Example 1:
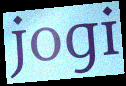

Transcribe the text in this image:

jogi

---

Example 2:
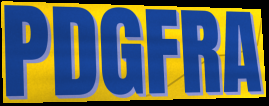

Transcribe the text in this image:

PDGFRA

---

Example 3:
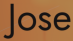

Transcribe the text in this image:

Jose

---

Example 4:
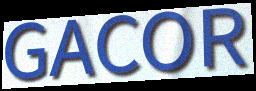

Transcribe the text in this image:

GACOR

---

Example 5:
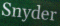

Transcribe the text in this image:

Snyder